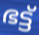
ഭട്ട്